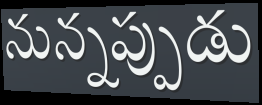
నున్నప్పుడు